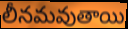
లీనమవుతాయి